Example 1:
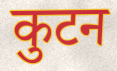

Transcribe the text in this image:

कुटन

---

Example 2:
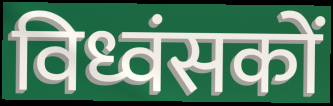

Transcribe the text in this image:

विध्वंसकों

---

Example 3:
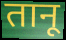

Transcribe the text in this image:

तानू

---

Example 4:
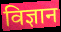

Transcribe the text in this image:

विज्ञान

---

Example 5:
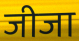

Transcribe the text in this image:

जीजा